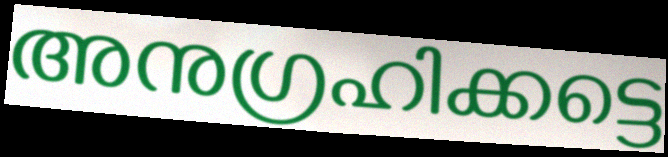
അനുഗ്രഹിക്കട്ടെ